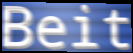
Beit